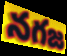
నగజ